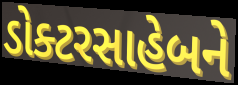
ડોક્ટરસાહેબને